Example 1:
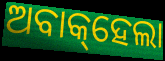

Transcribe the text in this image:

ଅବାକ୍‌ହେଲା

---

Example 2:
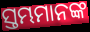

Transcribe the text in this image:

ସ୍ତମ୍ଭମାନଙ୍କ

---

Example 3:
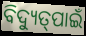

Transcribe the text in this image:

ବିଦ୍ୟୁତ୍‌ପାଇଁ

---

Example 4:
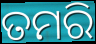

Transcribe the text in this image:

ତମରି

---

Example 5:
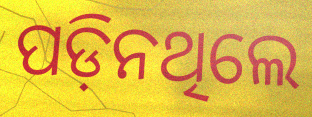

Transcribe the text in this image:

ପଡ଼ିନଥିଲେ